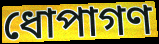
ধোপাগণ